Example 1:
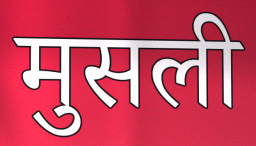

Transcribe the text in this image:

मुसली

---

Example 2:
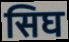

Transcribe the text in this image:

सिघ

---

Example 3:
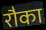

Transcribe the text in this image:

रौका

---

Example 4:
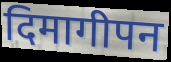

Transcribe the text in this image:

दिमागीपन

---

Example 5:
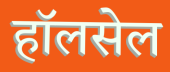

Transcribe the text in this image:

हॉलसेल